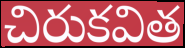
చిరుకవిత